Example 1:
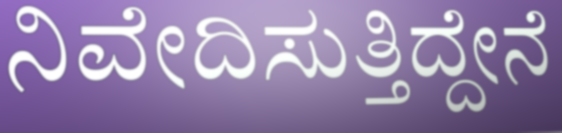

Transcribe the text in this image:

ನಿವೇದಿಸುತ್ತಿದ್ದೇನೆ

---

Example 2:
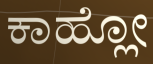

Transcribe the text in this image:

ಕಾಹ್ಲೋ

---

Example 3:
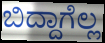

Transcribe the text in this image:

ಬಿದ್ದಾಗೆಲ್ಲ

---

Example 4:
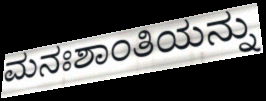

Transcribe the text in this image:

ಮನಃಶಾಂತಿಯನ್ನು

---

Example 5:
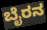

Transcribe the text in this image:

ಬೈರನ